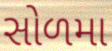
સોળમા